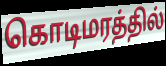
கொடிமரத்தில்